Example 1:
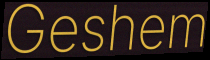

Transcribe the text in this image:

Geshem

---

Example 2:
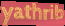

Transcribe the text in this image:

yathrib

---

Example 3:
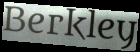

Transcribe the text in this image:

Berkley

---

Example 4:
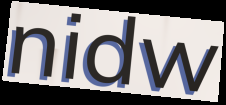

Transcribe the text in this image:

nidw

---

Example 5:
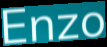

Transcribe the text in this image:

Enzo